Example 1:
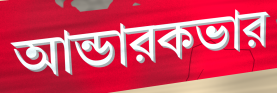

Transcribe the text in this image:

আন্ডারকভার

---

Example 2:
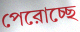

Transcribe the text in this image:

পেরোচ্ছে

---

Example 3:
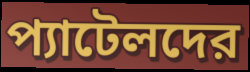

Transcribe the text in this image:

প্যাটেলদের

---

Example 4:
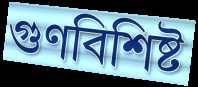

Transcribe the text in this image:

গুণবিশিষ্ট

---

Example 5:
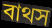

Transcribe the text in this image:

বাথস